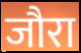
जौरा